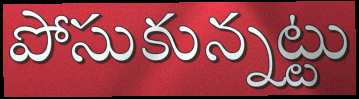
పోసుకున్నట్టు